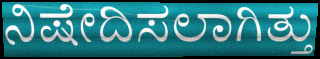
ನಿಷೇದಿಸಲಾಗಿತ್ತು